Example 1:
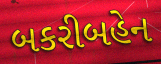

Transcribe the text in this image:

બકરીબહેન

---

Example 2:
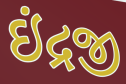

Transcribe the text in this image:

ઇંદ્રજી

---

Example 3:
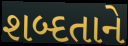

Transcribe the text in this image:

શબ્દતાને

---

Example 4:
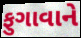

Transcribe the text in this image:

ફુગાવાને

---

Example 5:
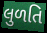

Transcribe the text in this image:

લુળતિ